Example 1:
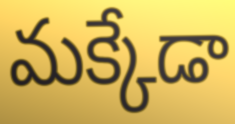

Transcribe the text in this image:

మక్కేడా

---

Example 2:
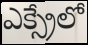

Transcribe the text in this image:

ఎక్స్రేలో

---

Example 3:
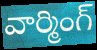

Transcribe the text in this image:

వార్మింగ్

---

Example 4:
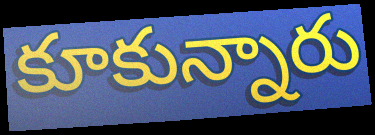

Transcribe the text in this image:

కూకున్నారు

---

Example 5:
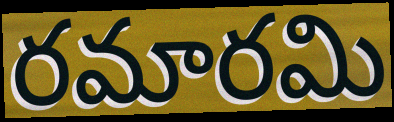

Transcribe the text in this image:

రమారమి